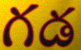
గడ